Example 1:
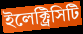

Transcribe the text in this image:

ইলেক্ট্রিসিটি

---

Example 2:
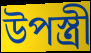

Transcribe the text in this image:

উপস্ত্রী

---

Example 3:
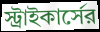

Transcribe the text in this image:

স্ট্রাইকার্সের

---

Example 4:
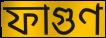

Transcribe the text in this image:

ফাগুণ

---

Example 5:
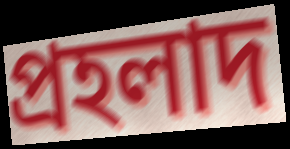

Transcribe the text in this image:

প্রহলাদ